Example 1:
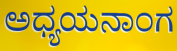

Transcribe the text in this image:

ಅಧ್ಯಯನಾಂಗ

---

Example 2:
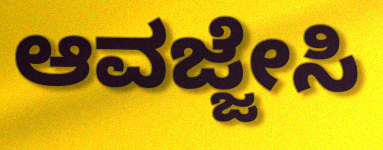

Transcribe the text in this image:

ಆವಜ್ಜೇಸಿ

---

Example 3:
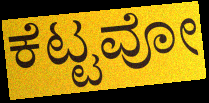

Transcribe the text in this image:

ಕೆಟ್ಟವೋ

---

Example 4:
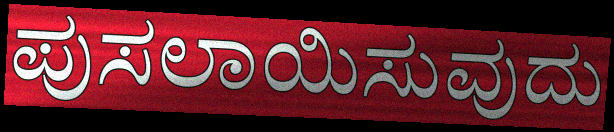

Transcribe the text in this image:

ಪುಸಲಾಯಿಸುವುದು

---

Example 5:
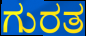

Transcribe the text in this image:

ಗುರತ